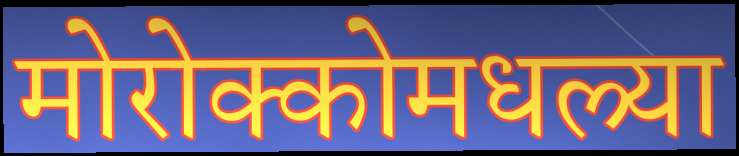
मोरोक्कोमधल्या